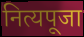
नित्यपूजा